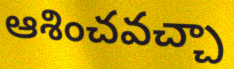
ఆశించవచ్చా